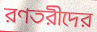
রণতরীদের